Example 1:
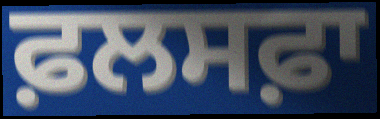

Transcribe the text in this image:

ਫ਼ਲਸਫ਼ਾ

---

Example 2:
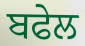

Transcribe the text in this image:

ਬਫੇਲ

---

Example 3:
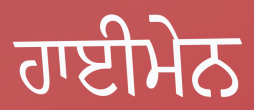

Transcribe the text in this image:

ਹਾਈਮੇਨ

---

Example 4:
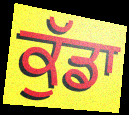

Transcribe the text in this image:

ਕੁੱਡਾ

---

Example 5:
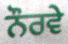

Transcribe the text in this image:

ਨੌਰਵੇ